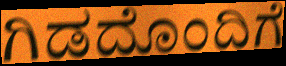
ಗಿಡದೊಂದಿಗೆ